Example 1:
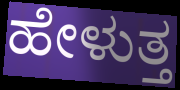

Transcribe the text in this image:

ಹೇಳುತ್ತ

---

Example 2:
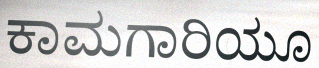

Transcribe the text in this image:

ಕಾಮಗಾರಿಯೂ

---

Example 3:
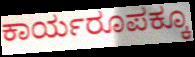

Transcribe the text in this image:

ಕಾರ್ಯರೂಪಕ್ಕೂ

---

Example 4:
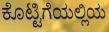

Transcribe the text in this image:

ಕೊಟ್ಟಿಗೆಯಲ್ಲಿಯ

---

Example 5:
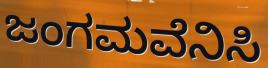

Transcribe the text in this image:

ಜಂಗಮವೆನಿಸಿ